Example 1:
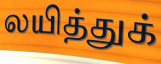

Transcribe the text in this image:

லயித்துக்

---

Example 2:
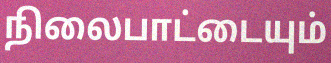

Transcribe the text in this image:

நிலைபாட்டையும்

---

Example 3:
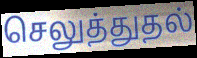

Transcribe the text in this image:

செலுத்துதல்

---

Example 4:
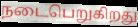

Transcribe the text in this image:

நடைபெறுகிறது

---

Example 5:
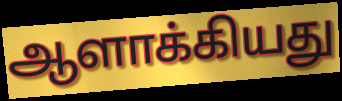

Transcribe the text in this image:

ஆளாக்கியது